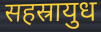
सहस्रायुध